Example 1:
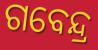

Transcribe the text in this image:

ଗବେନ୍ଦ୍ର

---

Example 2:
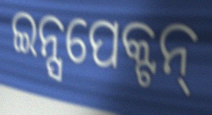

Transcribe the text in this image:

ଇନ୍ସପେକ୍ଟନ୍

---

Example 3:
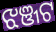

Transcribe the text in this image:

ଝଞ୍ଜଟ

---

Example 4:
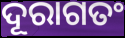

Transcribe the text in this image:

ଦୂରାଗତଂ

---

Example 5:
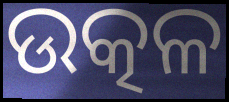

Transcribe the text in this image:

ଉତ୍କଳ